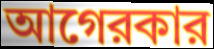
আগেরকার